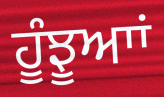
ਹੂੰਝੂਆਾਂ